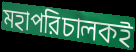
মহাপরিচালকই